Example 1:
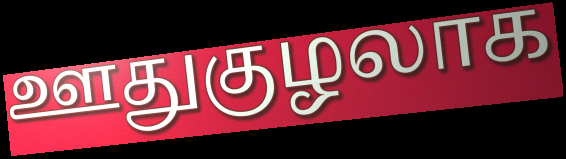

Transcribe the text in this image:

ஊதுகுழலாக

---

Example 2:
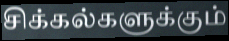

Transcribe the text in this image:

சிக்கல்களுக்கும்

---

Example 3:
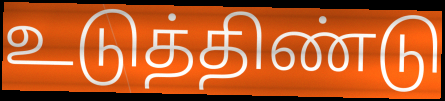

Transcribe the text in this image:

உடுத்திண்டு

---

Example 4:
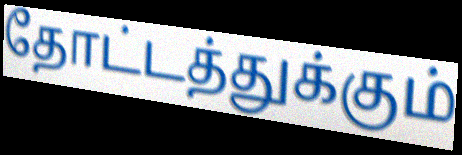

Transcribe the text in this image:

தோட்டத்துக்கும்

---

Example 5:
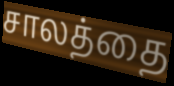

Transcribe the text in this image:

சாலத்தை